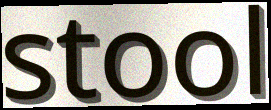
stool